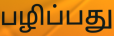
பழிப்பது